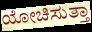
ಯೋಚಿಸುತ್ತಾ